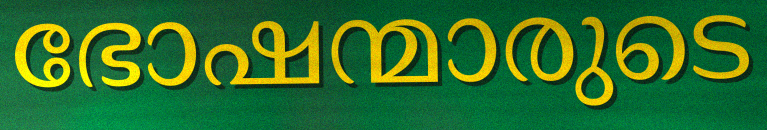
ഭോഷന്മാരുടെ